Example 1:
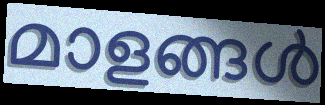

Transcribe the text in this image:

മാളങ്ങൾ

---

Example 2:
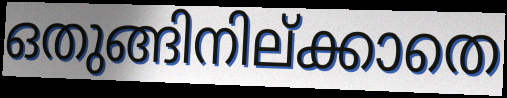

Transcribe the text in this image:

ഒതുങ്ങിനില്ക്കാതെ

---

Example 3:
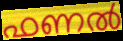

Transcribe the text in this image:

ഫണൽ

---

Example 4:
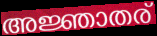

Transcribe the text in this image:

അജ്ഞാതര്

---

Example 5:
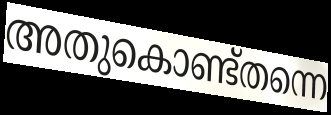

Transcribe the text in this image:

അതുകൊണ്ട്തന്നെ